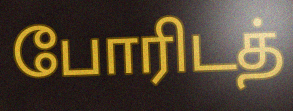
போரிடத்